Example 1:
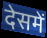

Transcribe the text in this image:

देसमें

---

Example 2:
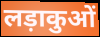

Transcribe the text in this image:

लड़ाकुओं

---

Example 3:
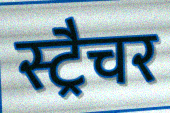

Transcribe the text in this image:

स्ट्रैचर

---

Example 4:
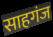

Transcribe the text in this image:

साहगंज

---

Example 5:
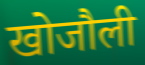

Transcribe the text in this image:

खोजौली